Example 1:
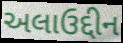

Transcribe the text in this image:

અલાઉદ્દીન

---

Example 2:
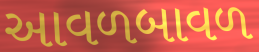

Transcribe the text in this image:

આવળબાવળ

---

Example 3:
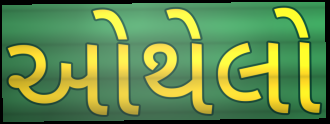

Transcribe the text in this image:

ઓથેલો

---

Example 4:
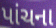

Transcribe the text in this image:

પાંચના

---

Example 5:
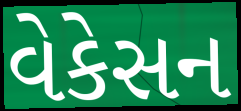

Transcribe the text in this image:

વેકેસન